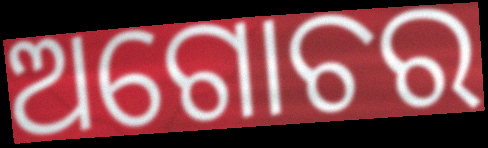
ଅଗୋଚର